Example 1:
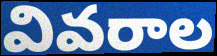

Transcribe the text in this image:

వివరాల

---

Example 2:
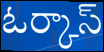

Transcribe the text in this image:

ఓర్కాస్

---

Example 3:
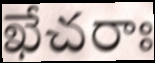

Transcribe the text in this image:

ఖేచరాః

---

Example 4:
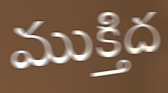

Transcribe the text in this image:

ముక్తిద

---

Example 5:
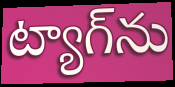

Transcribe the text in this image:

ట్యాగ్‌ను